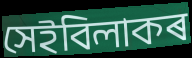
সেইবিলাকৰ